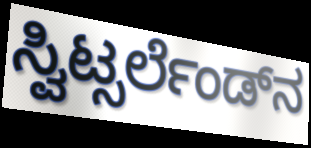
ಸ್ವಿಟ್ಸರ್ಲೆಂಡ್‌ನ